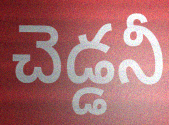
చెడ్డనీ